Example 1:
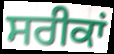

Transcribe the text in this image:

ਸਰੀਕਾਂ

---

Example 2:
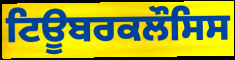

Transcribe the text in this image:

ਟਿਊਬਰਕਲੌਸਿਸ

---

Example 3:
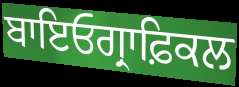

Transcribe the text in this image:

ਬਾਇਓਗ੍ਰਾਫ਼ਿਕਲ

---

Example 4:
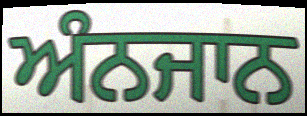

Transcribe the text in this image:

ਅੰਨਜਾਨ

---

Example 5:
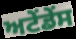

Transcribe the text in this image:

ਅਟੇਂਡੇਂਸ